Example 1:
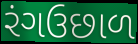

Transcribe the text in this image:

રંગઉછાળ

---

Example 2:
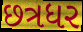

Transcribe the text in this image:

છત્રધર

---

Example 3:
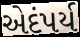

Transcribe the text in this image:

એદંપર્ય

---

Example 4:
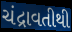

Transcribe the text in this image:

ચંદ્રાવતીથી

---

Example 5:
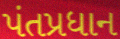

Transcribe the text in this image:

પંતપ્રધાન